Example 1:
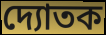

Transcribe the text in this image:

দ্যোতক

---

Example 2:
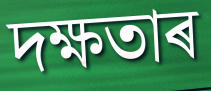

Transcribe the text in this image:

দক্ষতাৰ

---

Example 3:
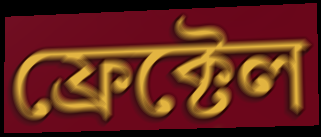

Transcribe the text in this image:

ফ্ৰেক্টেল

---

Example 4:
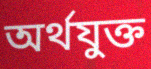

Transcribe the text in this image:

অৰ্থযুক্ত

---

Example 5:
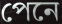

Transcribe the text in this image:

পেনে